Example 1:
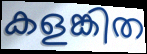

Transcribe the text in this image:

കളങ്കിത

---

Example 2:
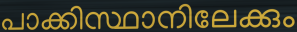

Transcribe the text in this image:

പാക്കിസ്ഥാനിലേക്കും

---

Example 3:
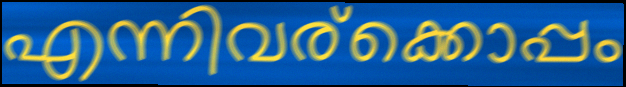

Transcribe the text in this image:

എന്നിവര്ക്കൊപ്പം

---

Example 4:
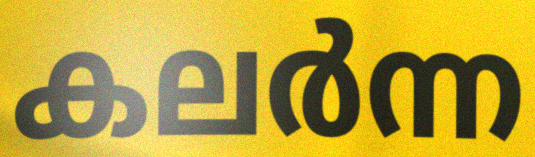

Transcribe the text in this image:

കലർന്ന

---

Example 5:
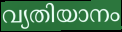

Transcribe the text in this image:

വ്യതിയാനം